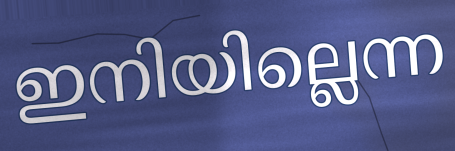
ഇനിയില്ലെന്ന